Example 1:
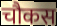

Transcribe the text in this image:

चौकस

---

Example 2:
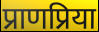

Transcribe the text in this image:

प्राणप्रिया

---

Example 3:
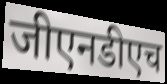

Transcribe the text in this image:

जीएनडीएच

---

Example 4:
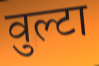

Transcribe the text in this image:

वुल्टा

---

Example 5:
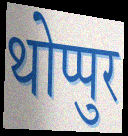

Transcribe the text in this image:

थोप्पुर